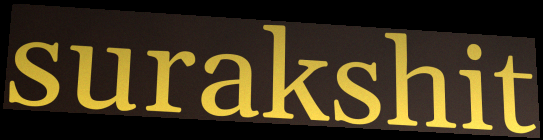
surakshit